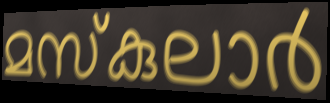
മസ്കുലാർ